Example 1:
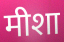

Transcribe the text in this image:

मीशा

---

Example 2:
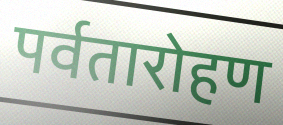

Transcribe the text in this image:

पर्वतारोहण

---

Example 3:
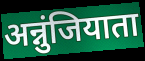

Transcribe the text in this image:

अन्नुंजियाता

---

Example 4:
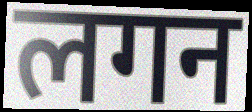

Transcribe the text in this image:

लगन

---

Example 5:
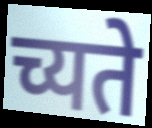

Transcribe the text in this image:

च्यते